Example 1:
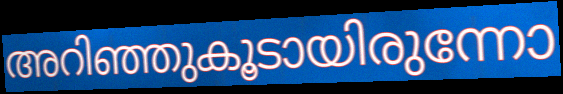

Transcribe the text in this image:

അറിഞ്ഞുകൂടായിരുന്നോ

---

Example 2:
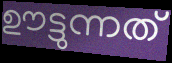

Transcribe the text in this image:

ഊട്ടുന്നത്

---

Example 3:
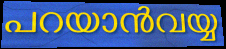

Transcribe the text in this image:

പറയാൻവയ്യ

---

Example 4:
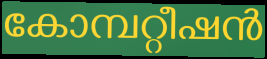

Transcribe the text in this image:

കോമ്പറ്റീഷൻ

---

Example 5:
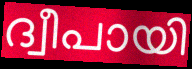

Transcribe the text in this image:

ദ്വീപായി